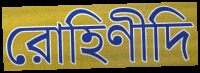
রোহিণীদি